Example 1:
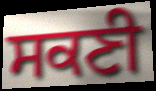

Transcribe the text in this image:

ਸਕਣੀ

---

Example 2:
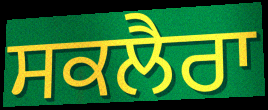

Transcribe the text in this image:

ਸਕਲੈਰਾ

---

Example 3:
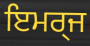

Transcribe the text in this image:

ਇਮਰ੍ਜ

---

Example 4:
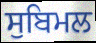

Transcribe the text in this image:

ਸੁਬਿਮਲ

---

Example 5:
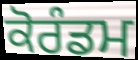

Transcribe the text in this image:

ਕੋਰੰਡਮ